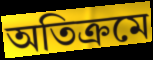
অতিক্ৰমে